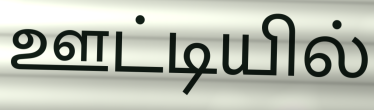
ஊட்டியில்